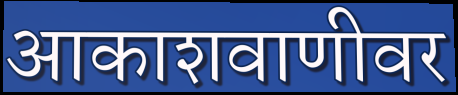
आकाशवाणीवर